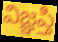
విజ్ఞప్తి